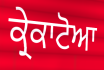
ਕ੍ਰੇਕਾਟੋਆ